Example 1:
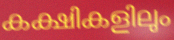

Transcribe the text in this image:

കക്ഷികളിലും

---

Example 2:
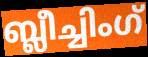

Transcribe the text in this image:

ബ്ലീച്ചിംഗ്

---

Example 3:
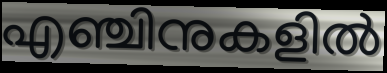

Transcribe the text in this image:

എഞ്ചിനുകളിൽ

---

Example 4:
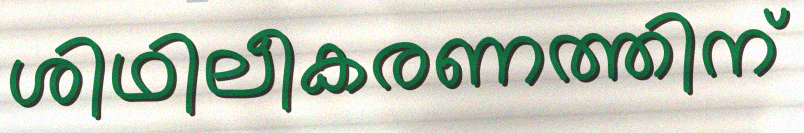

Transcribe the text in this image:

ശിഥിലീകരണത്തിന്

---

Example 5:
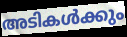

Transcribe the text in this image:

അടികൾക്കും